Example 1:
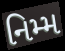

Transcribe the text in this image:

નિમ્મ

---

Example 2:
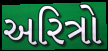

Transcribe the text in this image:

અરિત્રો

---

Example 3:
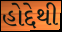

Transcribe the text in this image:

હોદ્દેથી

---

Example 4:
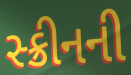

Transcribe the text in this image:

સ્ક્રીનની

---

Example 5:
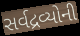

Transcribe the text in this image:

સર્વદ્રવ્યોની